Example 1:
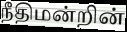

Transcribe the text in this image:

நீதிமன்றின்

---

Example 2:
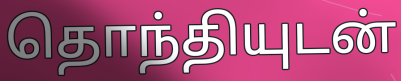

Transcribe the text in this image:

தொந்தியுடன்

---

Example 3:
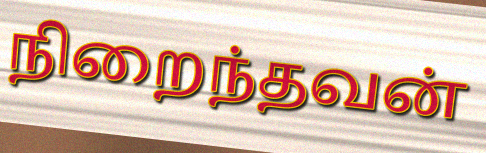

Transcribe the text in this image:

நிறைந்தவன்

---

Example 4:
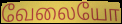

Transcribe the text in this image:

வேலையோ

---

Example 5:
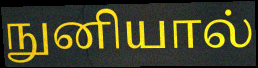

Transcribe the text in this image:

நுனியால்